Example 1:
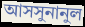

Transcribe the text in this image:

আসসুনানুল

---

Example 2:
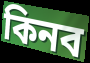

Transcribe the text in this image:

কিনব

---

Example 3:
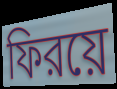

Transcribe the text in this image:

ফিরয়ে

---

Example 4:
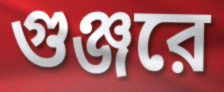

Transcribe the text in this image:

গুঞ্জরে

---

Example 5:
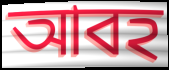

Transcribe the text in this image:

আবহ